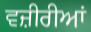
ਵਜ਼ੀਰੀਆਂ